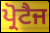
ਪ੍ਰੋਟੈਜ